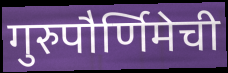
गुरुपौर्णिमेची